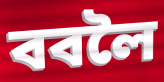
ববলৈ